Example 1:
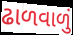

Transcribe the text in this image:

ઢાળવાળું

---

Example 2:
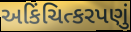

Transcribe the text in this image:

અકિંચિત્કરપણું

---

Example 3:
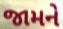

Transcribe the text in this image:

જામને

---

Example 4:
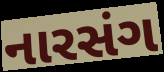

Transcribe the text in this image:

નારસંગ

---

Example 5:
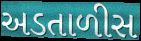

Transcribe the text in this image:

અડતાળીસ